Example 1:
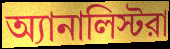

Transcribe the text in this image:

অ্যানালিস্টরা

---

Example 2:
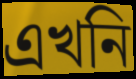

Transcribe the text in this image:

এখনি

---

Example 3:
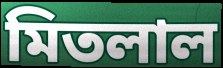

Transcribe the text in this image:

মিতলাল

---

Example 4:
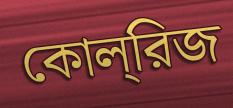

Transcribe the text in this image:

কোল্‌রিজ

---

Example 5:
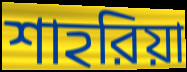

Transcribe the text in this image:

শাহরিয়া